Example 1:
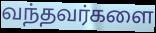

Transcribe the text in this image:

வந்தவர்களை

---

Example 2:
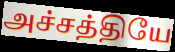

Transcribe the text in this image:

அச்சத்தியே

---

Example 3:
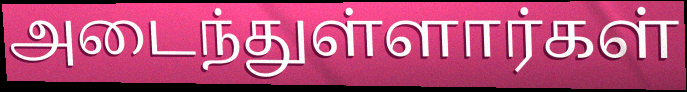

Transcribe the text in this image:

அடைந்துள்ளார்கள்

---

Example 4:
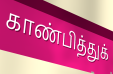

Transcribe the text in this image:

காண்பித்துக்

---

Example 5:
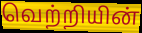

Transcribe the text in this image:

வெற்றியின்